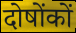
दोषोंकों